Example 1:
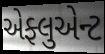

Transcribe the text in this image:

એફ્લુએન્ટ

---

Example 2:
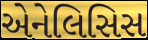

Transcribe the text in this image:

એનેલિસિસ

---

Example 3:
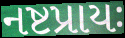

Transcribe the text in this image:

નષ્ટપ્રાયઃ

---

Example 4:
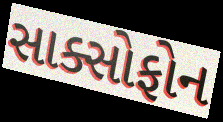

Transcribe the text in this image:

સાક્સોફોન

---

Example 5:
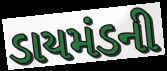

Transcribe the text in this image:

ડાયમંડની